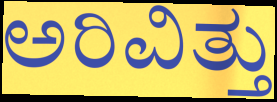
ಅರಿವಿತ್ತು